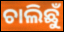
ଚାଲିଛୁଁ